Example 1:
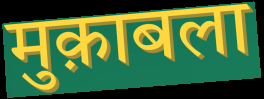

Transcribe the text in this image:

मुक़ाबला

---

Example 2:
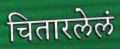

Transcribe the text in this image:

चितारलेलं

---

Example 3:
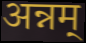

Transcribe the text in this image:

अन्नम्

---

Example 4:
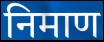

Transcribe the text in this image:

निमाण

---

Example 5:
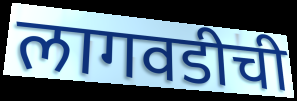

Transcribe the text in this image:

लागवडीची